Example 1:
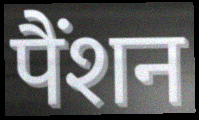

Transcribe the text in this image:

पैंशन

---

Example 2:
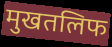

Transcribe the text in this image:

मुखतलिफ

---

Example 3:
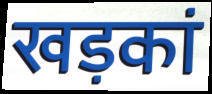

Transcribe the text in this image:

खड़कां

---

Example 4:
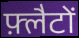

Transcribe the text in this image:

फ़्लैटों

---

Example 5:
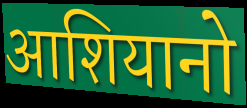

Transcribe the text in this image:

आशियानो